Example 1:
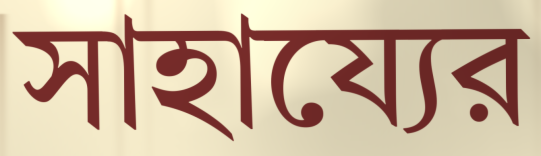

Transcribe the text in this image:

সাহায্য়ের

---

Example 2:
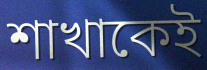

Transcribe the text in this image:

শাখাকেই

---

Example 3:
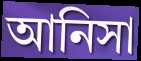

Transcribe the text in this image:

আনিসা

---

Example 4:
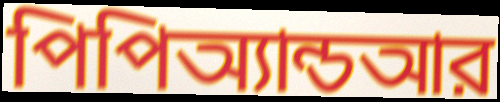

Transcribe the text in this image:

পিপিঅ্যান্ডআর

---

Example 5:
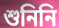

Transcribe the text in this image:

শুনিনি